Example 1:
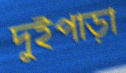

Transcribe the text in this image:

দুইপাড়া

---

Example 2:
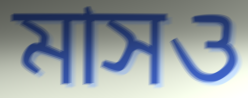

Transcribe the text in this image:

মাসও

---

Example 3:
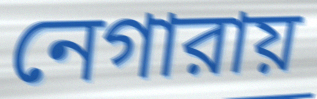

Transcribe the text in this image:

নেগারায়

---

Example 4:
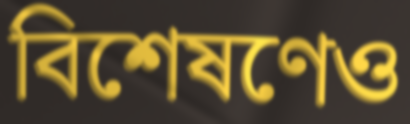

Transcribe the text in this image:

বিশেষণেও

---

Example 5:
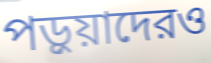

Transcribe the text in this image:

পড়ুয়াদেরও